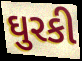
ઘુરકી